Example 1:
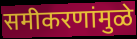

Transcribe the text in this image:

समीकरणांमुळे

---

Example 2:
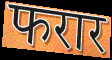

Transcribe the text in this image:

फरार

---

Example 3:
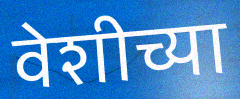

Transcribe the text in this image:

वेशीच्या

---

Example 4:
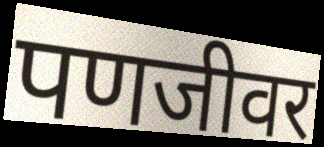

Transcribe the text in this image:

पणजीवर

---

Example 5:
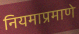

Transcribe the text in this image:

नियमाप्रमाणे